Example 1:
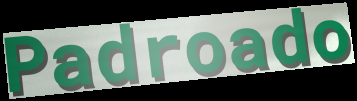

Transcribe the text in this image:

Padroado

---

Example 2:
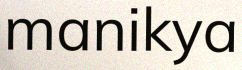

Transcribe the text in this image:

manikya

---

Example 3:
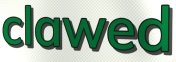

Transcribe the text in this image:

clawed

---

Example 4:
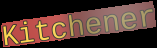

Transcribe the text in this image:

Kitchener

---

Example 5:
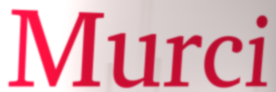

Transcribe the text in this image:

Murci